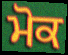
ਮੋਕ